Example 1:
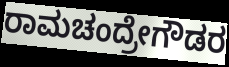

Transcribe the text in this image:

ರಾಮಚಂದ್ರೇಗೌಡರ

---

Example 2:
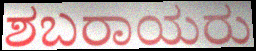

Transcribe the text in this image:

ಶಬರಾಯರು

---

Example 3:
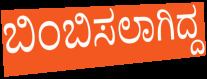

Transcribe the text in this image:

ಬಿಂಬಿಸಲಾಗಿದ್ದ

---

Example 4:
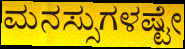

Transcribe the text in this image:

ಮನಸ್ಸುಗಳಷ್ಟೇ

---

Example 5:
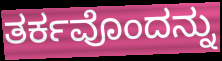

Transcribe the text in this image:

ತರ್ಕವೊಂದನ್ನು